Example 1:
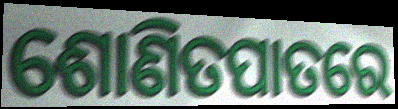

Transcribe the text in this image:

ଶୋଣିତପାତରେ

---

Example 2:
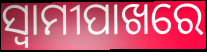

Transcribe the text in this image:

ସ୍ୱାମୀପାଖରେ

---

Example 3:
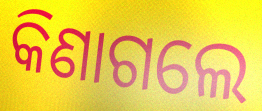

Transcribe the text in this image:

କିଣାଗଲେ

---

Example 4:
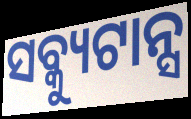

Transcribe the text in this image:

ସବ୍କ୍ୟୁଟାନ୍ସ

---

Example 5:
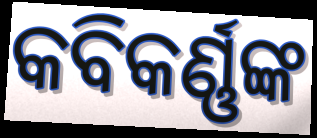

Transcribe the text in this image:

କବିକର୍ଣ୍ଣଙ୍କ